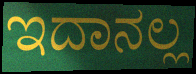
ಇದಾನಲ್ಲ